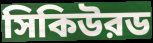
সিকিউরড